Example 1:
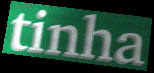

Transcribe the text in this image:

tinha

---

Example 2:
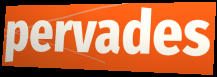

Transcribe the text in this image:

pervades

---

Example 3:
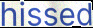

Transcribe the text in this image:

hissed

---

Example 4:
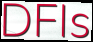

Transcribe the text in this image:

DFIs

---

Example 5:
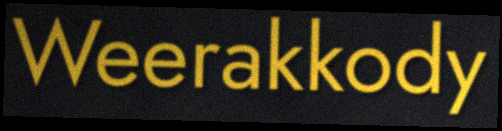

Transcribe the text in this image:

Weerakkody